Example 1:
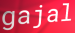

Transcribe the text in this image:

gajal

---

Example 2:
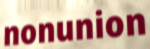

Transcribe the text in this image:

nonunion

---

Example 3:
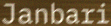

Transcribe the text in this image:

Janbari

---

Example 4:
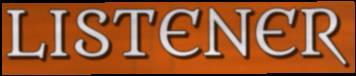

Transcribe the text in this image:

LISTENER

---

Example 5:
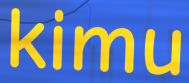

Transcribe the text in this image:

kimu